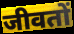
जीवतों